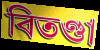
বিতণ্ডা